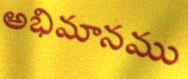
అభిమానము